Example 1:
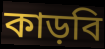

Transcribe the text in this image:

কাড়বি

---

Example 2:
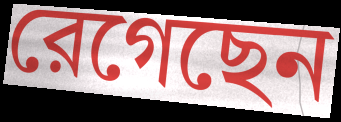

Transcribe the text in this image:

রেগেছেন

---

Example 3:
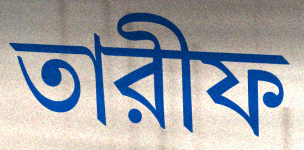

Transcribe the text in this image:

তারীফ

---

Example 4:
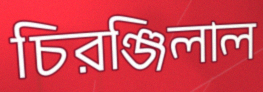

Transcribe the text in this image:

চিরঞ্জিলাল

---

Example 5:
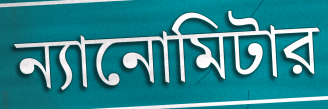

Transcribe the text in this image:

ন্যানোমিটার